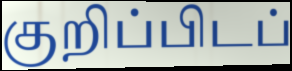
குறிப்பிடப்